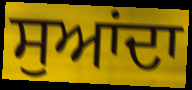
ਸੁਆਂਦਾ